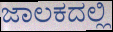
ಜಾಲಕದಲ್ಲಿ